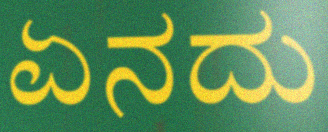
ಏನದು